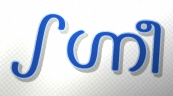
ഽഗ്നീ